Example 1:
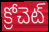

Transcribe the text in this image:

క్రోచెట్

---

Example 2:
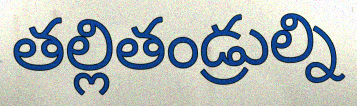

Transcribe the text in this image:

తల్లితండ్రుల్ని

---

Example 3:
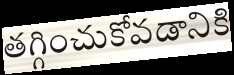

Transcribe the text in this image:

తగ్గించుకోవడానికి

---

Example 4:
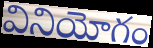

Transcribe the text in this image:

వినియోగం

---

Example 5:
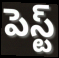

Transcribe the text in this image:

పెస్ట్